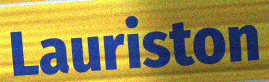
Lauriston